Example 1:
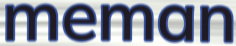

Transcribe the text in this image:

meman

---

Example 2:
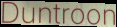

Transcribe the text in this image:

Duntroon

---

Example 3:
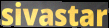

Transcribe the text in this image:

sivastar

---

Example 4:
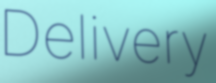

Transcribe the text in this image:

Delivery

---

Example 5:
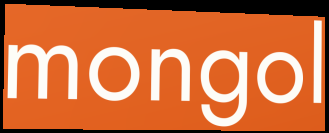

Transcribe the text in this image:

mongol